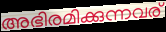
അഭിരമിക്കുന്നവര്